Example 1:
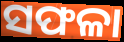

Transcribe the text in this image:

ସଫଳା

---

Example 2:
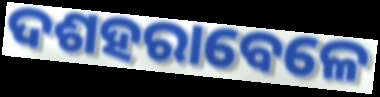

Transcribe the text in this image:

ଦଶହରାବେଳେ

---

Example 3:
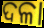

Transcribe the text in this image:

ଦଳା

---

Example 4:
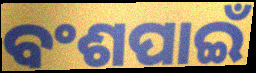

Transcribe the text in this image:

ବଂଶପାଇଁ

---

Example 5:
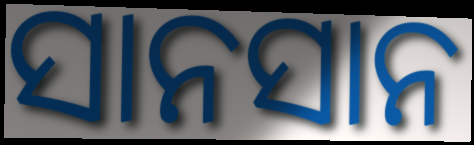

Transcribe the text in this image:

ସାନସାନ